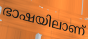
ഭാഷയിലാണ്